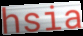
hsia